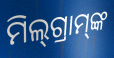
ମିଲ୍‌ଗ୍ରାମ୍‌ଙ୍କ